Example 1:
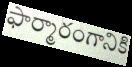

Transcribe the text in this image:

ఫార్మారంగానికి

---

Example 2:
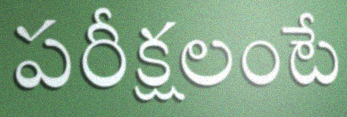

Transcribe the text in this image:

పరీక్షలంటే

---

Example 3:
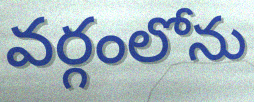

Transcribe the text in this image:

వర్గంలోను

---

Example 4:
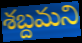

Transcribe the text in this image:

శబ్దమని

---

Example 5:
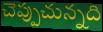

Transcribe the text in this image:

చెప్పుచున్నది